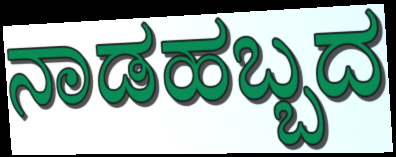
ನಾಡಹಬ್ಬದ